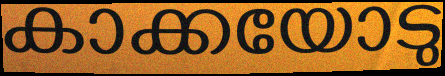
കാക്കയോടു